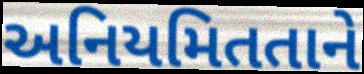
અનિયમિતતાને